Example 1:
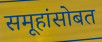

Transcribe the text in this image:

समूहांसोबत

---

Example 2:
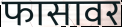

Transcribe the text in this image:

फासावर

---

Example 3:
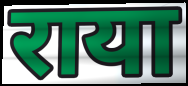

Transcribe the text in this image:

राया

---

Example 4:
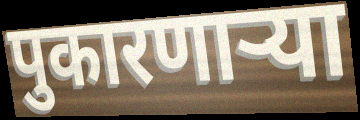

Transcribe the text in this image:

पुकारणार्‍या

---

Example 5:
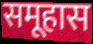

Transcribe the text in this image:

समूहास